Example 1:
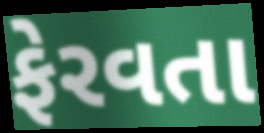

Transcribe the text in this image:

ફેરવતા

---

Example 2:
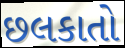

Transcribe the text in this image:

છલકાતો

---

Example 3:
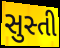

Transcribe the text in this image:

સુસ્તી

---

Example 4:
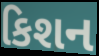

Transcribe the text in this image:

કિશન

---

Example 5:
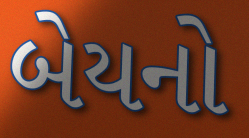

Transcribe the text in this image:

બેયનો